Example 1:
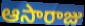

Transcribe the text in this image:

ఆసారాజు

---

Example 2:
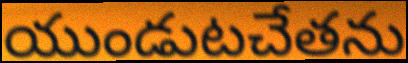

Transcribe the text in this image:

యుండుటచేతను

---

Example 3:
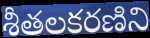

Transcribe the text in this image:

శీతలకరణిని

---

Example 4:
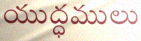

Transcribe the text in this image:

యుద్ధములు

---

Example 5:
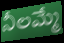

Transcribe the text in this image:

నీలమ్మే